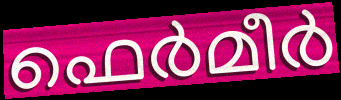
ഫെർമീർ